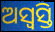
ଅସ୍ୱସ୍ତି